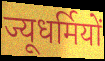
ज्यूधर्मियों